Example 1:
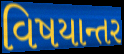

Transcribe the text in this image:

વિષયાન્તર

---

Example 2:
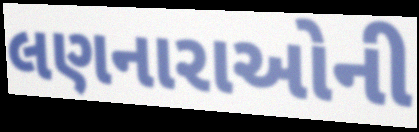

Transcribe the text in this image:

લણનારાઓની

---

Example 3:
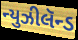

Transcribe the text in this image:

ન્યુઝીલૅન્ડ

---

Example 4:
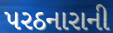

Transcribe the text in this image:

પરઠનારાની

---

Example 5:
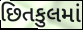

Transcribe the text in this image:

છિતકુલમાં